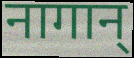
नागान्